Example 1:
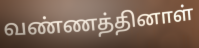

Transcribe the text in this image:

வண்ணத்தினாள்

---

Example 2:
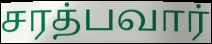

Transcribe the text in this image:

சரத்பவார்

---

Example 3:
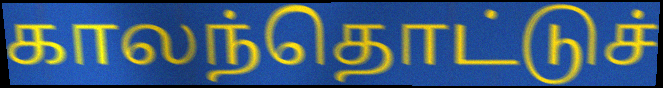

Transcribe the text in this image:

காலந்தொட்டுச்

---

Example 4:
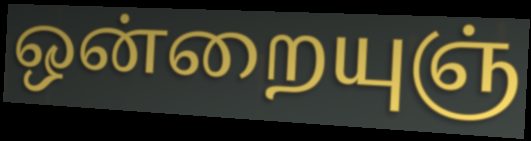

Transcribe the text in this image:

ஒன்றையுஞ்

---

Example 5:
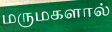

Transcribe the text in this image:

மருமகளால்